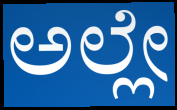
ಅಲ್ಲೇ